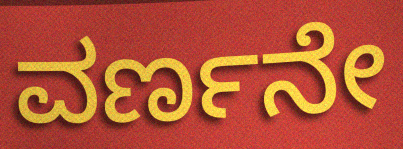
ವರ್ಣನೇ